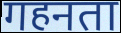
गहनता